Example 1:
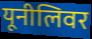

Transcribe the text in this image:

यूनीलिवर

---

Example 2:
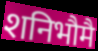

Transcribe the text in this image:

शनिभौमै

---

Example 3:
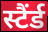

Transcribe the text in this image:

स्टैंर्ड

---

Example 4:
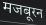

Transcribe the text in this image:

मजबूरन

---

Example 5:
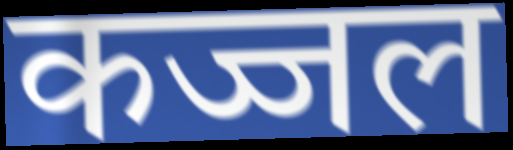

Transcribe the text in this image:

कज्जल